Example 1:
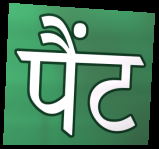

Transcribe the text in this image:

पैंट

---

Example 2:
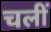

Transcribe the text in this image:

चलीं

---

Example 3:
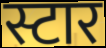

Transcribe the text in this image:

स्टार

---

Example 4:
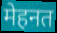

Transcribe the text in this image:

मेहनत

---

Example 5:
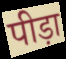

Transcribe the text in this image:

पीड़ा